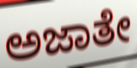
ಅಜಾತೇ